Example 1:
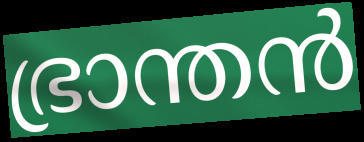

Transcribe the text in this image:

ഭ്രാന്തൻ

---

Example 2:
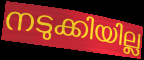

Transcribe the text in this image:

നടുക്കിയില്ല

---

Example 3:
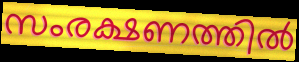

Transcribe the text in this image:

സംരക്ഷണത്തിൽ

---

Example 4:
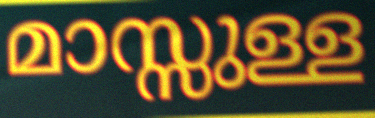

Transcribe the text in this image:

മാസ്സുള്ള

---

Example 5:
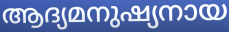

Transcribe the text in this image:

ആദ്യമനുഷ്യനായ